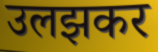
उलझकर